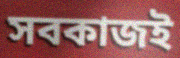
সবকাজই